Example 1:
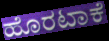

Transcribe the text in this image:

ಹೊರಟಾಕೆ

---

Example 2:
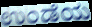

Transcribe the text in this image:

ಉಂಡೆಯ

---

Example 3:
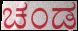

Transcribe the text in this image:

ಚಂಡ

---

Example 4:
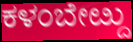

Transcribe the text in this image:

ಕಳಂಬೇೞ್ದು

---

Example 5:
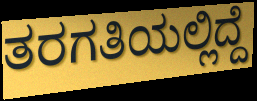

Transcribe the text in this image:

ತರಗತಿಯಲ್ಲಿದ್ದೆ